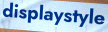
displaystyle